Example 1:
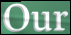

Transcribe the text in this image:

Our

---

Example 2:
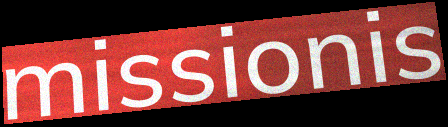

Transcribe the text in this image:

missionis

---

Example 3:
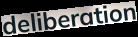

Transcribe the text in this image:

deliberation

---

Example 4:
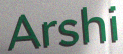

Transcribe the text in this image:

Arshi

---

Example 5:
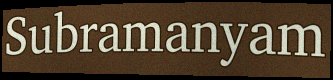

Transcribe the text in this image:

Subramanyam